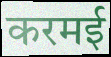
करमई